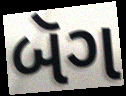
બૅગ